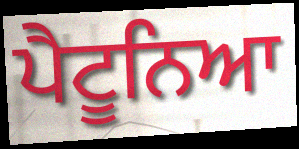
ਪੈਟੂਨਿਆ